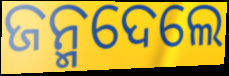
ଜନ୍ମଦେଲେ